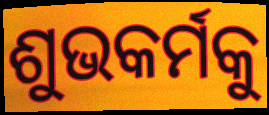
ଶୁଭକର୍ମକୁ